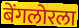
बेंगलोरला